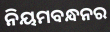
ନିୟମବନ୍ଧନର